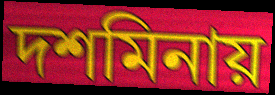
দশমিনায়